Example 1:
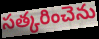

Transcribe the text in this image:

సత్కరించెను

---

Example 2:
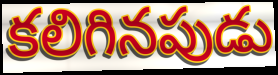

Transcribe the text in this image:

కలిగినపుడు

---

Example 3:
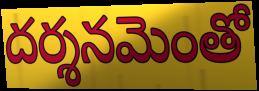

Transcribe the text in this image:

దర్శనమెంతో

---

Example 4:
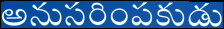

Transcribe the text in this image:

అనుసరింపకుడు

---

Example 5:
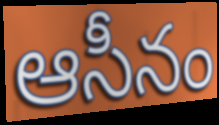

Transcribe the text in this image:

ఆసీనం